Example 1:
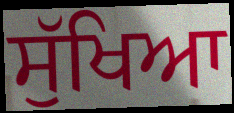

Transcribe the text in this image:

ਸੁੱਖਿਆ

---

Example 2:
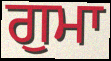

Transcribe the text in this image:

ਗੁਮਾ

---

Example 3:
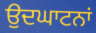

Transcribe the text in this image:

ਉਦਘਾਟਨਾਂ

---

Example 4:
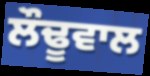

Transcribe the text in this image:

ਲੌਢੂਵਾਲ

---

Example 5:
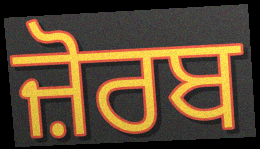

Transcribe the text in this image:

ਜ਼ੋਰਬ